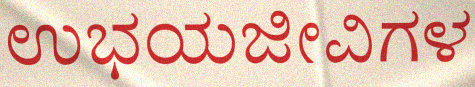
ಉಭಯಜೀವಿಗಳ